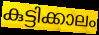
കുട്ടിക്കാലം